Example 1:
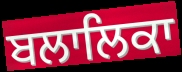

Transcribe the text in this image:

ਬਲਾਲਿਕਾ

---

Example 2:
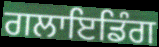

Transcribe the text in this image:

ਗਲਾਇਡਿੰਗ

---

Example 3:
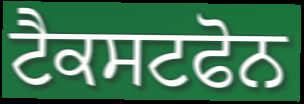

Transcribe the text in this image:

ਟੈਕਸਟਫੋਨ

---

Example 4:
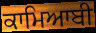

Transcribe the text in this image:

ਕਾਮਿਆਬੀ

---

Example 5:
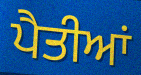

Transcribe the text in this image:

ਪੈਤੀਆਂ